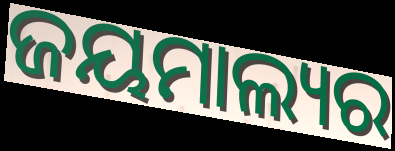
ଜୟମାଲ୍ୟର